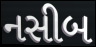
નસીબ